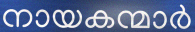
നായകന്മാർ